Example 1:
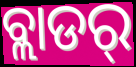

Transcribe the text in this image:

ବ୍ଲାଡର୍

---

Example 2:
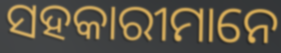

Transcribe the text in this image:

ସହକାରୀମାନେ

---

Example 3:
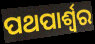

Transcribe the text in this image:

ପଥପାର୍ଶ୍ଵର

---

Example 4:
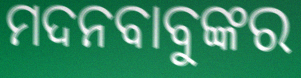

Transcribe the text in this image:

ମଦନବାବୁଙ୍କର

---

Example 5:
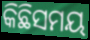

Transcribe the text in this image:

କିଛିସମୟ